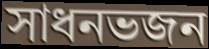
সাধনভজন